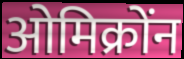
ओमिक्रोंन